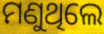
ମଣୁଥିଲେ